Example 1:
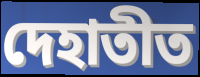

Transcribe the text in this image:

দেহাতীত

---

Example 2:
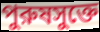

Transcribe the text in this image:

পুরুষসুক্তে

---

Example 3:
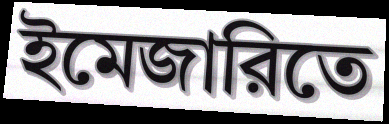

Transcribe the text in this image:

ইমেজারিতে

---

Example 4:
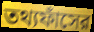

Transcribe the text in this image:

তথ্যফাঁসের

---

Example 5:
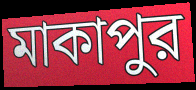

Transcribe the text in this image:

মাকাপুর